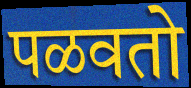
पळवतो